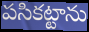
పసికట్టాను